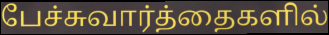
பேச்சுவார்த்தைகளில்